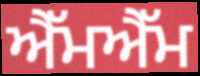
ਐੱਮਐੱਮ